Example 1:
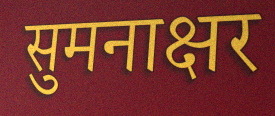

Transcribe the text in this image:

सुमनाक्षर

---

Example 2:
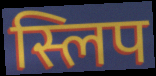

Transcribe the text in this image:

स्लिप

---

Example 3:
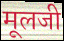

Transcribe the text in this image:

मूलजी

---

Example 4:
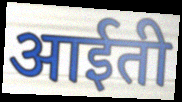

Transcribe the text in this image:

आईती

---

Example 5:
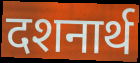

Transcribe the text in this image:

दशनार्थ